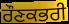
ਰੌਣਕਭਰੀ